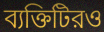
ব্যক্তিটিরও